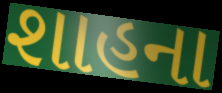
શાહના